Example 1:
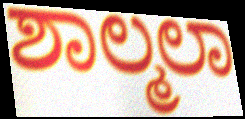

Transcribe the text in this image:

ಶಾಲ್ಮಲಾ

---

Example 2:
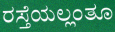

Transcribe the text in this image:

ರಸ್ತೆಯಲ್ಲಂತೂ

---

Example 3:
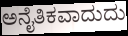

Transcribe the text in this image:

ಅನೈತಿಕವಾದುದು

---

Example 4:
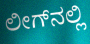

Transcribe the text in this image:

ಲೀಗ್‌ನಲ್ಲಿ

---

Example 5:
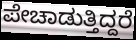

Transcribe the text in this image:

ಪೇಚಾಡುತ್ತಿದ್ದರೆ